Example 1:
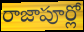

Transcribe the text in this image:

రాజాపూర్లో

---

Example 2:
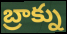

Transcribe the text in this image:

బ్రాక్ను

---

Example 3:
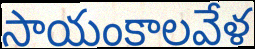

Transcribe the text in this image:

సాయంకాలవేళ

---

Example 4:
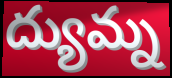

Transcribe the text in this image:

ద్యుమ్న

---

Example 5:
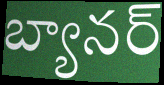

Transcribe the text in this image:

బ్యానర్